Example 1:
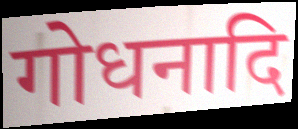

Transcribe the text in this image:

गोधनादि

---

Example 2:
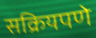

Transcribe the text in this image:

सक्रियपणे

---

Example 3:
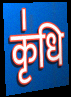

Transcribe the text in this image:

कृ॑धि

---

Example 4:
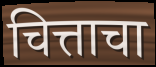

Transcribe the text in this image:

चित्ताचा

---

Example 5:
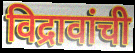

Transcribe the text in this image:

विद्रावांची